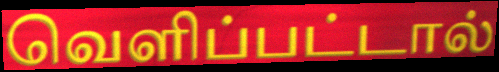
வெளிப்பட்டால்